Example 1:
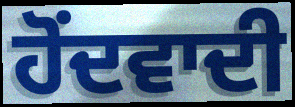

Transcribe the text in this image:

ਹੋਂਦਵਾਦੀ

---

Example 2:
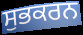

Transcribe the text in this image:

ਸੁਭਕਰਨ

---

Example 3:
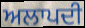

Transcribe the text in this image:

ਅਲਾਪਦੀ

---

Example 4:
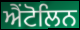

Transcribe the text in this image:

ਐਂਟੋਲਿਨ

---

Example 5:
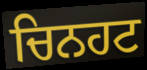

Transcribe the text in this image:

ਚਿਨਹਟ